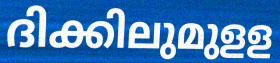
ദിക്കിലുമുളള